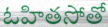
ఓహితసోతో